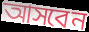
আসবেন